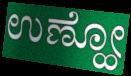
ಉಣ್ಹೋ